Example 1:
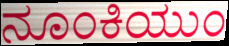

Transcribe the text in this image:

ನೂಂಕಿಯುಂ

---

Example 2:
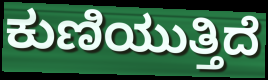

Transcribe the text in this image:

ಕುಣಿಯುತ್ತಿದೆ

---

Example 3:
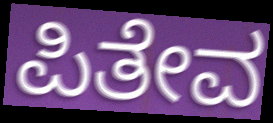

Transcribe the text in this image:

ಪಿತೇವ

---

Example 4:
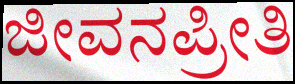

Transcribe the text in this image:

ಜೀವನಪ್ರೀತಿ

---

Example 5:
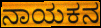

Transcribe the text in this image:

ನಾಯಕನ